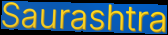
Saurashtra